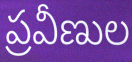
ప్రవీణుల